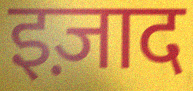
इज़ाद